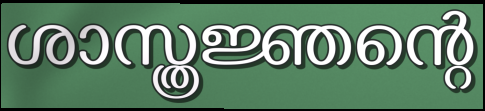
ശാസ്ത്രജ്ഞന്റെ